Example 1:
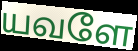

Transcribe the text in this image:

யவளே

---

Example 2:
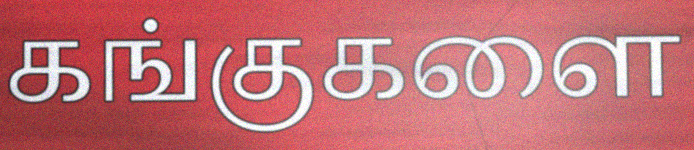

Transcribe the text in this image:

கங்குகளை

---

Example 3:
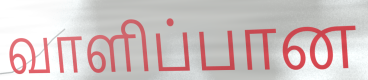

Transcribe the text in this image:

வாளிப்பான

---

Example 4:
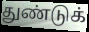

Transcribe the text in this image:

துண்டுக்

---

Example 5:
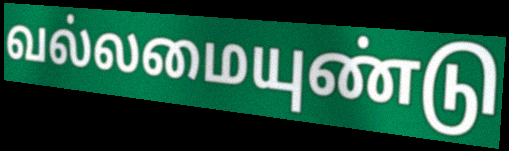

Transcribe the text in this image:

வல்லமையுண்டு